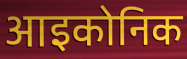
आइकोनिक